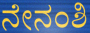
ನೇನಂಶಿ